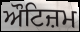
ਔਟਿਜ਼ਮ